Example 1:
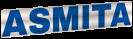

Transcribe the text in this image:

ASMITA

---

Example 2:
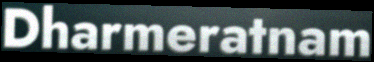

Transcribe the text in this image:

Dharmeratnam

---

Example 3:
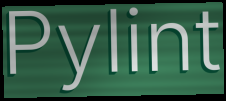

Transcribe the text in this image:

Pylint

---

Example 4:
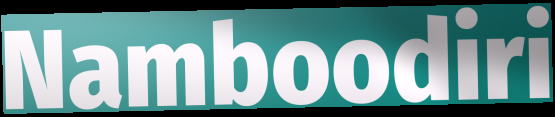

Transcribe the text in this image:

Namboodiri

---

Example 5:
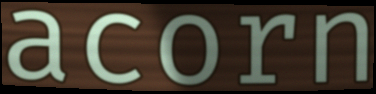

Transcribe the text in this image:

acorn